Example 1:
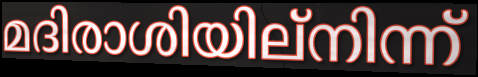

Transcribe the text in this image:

മദിരാശിയില്നിന്ന്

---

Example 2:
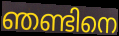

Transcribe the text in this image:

ഞണ്ടിനെ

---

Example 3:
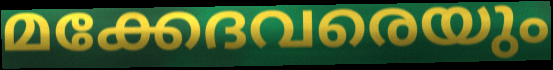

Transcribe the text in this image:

മക്കേദവരെയും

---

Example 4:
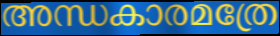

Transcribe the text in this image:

അന്ധകാരമത്രേ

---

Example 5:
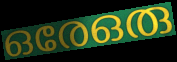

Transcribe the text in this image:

ഒരേഒരു